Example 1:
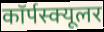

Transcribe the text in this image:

कॉर्पस्क्यूलर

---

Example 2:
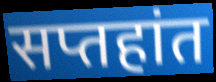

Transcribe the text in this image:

सप्तहांत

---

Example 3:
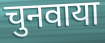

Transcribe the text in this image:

चुनवाया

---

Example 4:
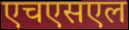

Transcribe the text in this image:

एचएसएल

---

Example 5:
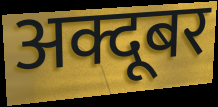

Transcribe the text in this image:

अक्दूबर